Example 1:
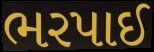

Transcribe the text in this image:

ભરપાઈ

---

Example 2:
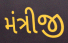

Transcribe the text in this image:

મંત્રીજી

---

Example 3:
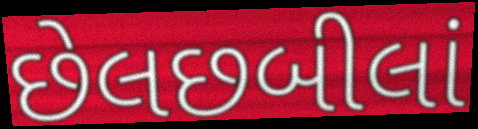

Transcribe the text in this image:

છેલછબીલાં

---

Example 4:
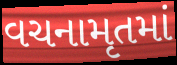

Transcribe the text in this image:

વચનામૃતમાં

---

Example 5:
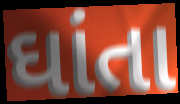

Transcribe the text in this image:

ઘાંતા